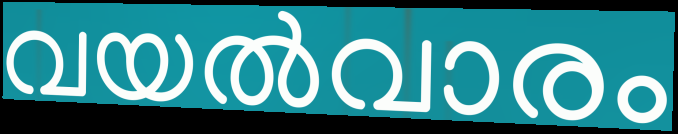
വയൽവാരം